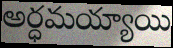
అర్ధమయ్యాయి